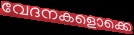
വേദനകളൊക്കെ